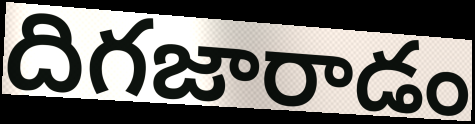
దిగజారాడం